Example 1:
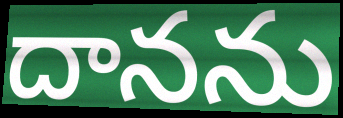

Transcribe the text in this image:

దానను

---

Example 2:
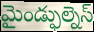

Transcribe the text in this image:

మైండ్ఫుల్నెస్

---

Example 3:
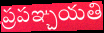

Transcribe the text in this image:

ప్రపఞ్చయతి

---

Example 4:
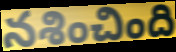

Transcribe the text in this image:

నశించింది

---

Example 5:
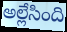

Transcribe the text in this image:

అల్లేసింది